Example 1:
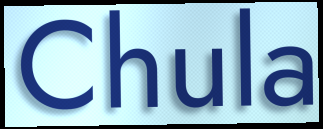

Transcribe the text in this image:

Chula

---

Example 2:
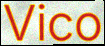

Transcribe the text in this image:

Vico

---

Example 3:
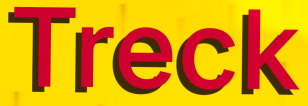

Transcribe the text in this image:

Treck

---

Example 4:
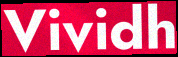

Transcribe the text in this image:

Vividh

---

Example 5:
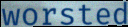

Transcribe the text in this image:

worsted